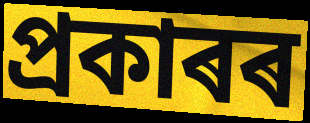
প্ৰকাৰৰ